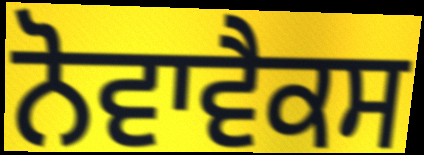
ਨੋਵਾਵੈਕਸ